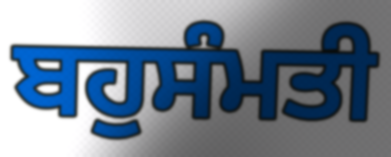
ਬਹੁਸੰਮਤੀ